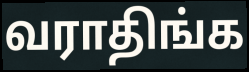
வராதிங்க